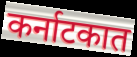
कर्नाटकात